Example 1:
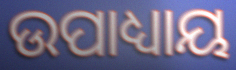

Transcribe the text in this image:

ଉପାଧ୍ୟାୟ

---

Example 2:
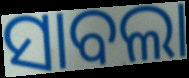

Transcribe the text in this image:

ସାବଲା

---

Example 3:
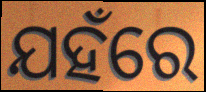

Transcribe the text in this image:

ଯହଁରେ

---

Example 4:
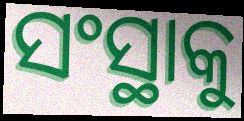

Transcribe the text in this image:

ସଂସ୍ଥାକୁ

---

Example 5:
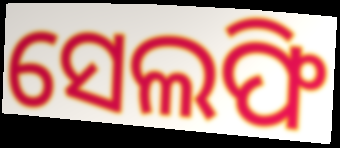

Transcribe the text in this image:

ସେଲଫି